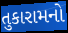
તુકારામનો